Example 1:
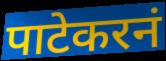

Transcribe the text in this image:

पाटेकरनं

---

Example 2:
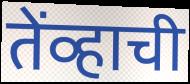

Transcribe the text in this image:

तेंव्हाची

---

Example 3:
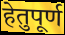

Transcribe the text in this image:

हेतुपूर्ण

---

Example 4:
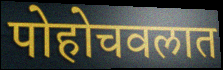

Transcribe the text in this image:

पोहोचवलात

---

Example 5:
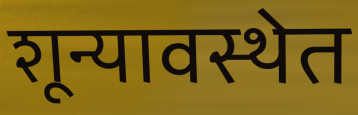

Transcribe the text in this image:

शून्यावस्थेत